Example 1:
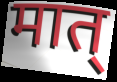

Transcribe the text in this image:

मात्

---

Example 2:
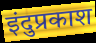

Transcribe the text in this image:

इंदुप्रकाश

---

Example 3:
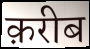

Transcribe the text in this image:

क़रीब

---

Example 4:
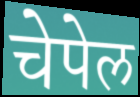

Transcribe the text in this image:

चेपेल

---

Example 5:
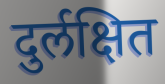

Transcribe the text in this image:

दुर्लक्षित